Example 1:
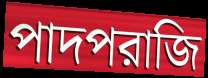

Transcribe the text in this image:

পাদপরাজি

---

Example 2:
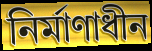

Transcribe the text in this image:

নির্মাণাধীন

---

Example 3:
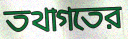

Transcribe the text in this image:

তথাগতের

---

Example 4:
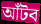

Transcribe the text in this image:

আঁটব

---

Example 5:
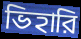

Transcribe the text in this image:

ভিহারি